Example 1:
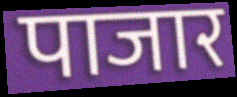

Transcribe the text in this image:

पाजार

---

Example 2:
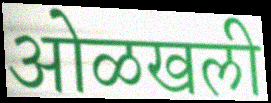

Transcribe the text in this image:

ओळखली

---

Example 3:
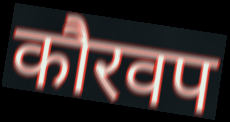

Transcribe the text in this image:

कौरवप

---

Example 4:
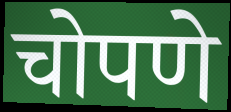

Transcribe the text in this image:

चोपणे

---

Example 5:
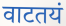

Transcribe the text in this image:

वाटतयं